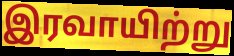
இரவாயிற்று